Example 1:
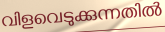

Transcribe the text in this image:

വിളവെടുക്കുന്നതിൽ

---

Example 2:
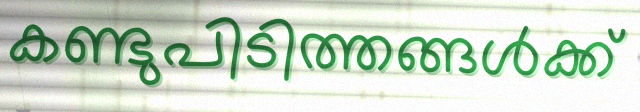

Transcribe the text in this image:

കണ്ടുപിടിത്തങ്ങൾക്ക്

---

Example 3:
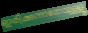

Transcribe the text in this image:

ഇരിക്കുന്നതേയുള്ളൂ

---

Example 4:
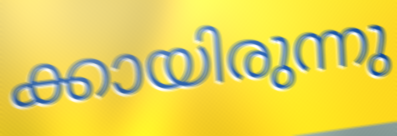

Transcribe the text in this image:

ക്കായിരുന്നു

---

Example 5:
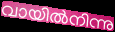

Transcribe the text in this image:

വായിൽനിന്നു